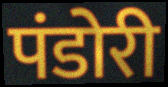
पंडोरी